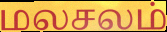
மலசலம்